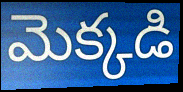
మెక్కడి